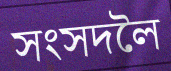
সংসদলৈ